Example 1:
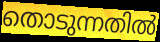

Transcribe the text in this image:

തൊടുന്നതിൽ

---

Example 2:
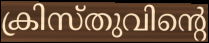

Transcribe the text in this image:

ക്രിസ്തുവിന്റെ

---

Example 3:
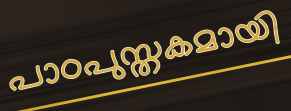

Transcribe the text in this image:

പാഠപുസ്തകമായി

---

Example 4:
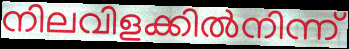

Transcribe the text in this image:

നിലവിളക്കിൽനിന്ന്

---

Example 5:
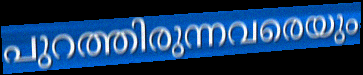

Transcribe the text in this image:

പുറത്തിരുന്നവരെയും